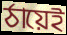
ঠায়েই